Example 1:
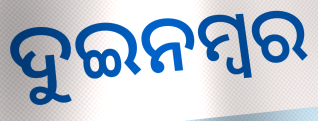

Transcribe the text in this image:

ଦୁଇନମ୍ୱର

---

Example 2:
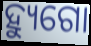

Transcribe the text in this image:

ହ୍ୟୁଗୋ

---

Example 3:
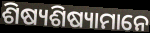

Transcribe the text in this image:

ଶିଷ୍ୟଶିଷ୍ୟାମାନେ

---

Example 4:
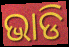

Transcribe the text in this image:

ଭାଡି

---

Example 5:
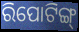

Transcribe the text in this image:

ରିପୋଟିଙ୍ଗ୍